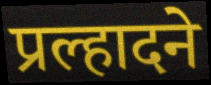
प्रल्हादने